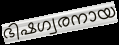
ഭിഷഗ്വരനായ